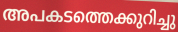
അപകടത്തെക്കുറിച്ചു